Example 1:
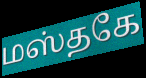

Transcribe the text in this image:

மஸ்தகே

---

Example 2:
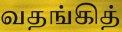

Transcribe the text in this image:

வதங்கித்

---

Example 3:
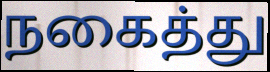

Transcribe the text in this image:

நகைத்து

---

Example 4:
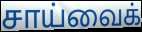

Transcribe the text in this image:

சாய்வைக்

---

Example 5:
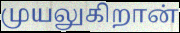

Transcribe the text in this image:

முயலுகிறான்